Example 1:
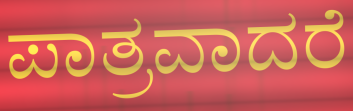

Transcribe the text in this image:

ಪಾತ್ರವಾದರೆ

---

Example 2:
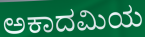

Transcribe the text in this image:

ಅಕಾದಮಿಯ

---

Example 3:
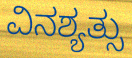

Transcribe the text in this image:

ವಿನಶ್ಯತ್ಸು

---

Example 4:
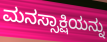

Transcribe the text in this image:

ಮನಸ್ಸಾಕ್ಷಿಯನ್ನು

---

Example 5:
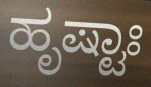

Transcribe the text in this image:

ಹೃಷ್ಟಾಃ